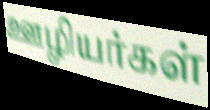
ஊழியர்கள்